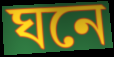
ঘনে